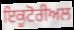
ਇਕੂਟੋਰੀਅਲ